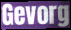
Gevorg